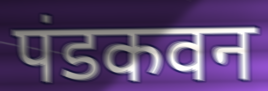
पंडकवन